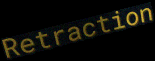
Retraction